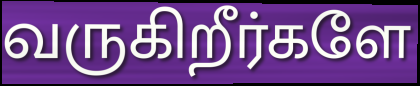
வருகிறீர்களே